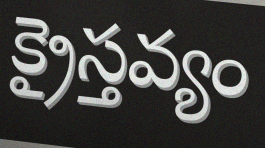
క్రైస్తవ్యం